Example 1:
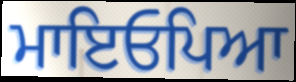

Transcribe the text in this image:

ਮਾਇਓਪਿਆ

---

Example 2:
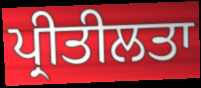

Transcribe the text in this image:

ਪ੍ਰੀਤੀਲਤਾ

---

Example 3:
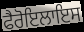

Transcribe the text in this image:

ਫੈਰੋਇਲਾਇਸ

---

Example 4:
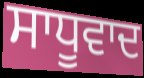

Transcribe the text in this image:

ਸਾਧੂਵਾਦ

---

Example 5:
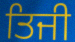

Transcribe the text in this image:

ਤਿਜੀ